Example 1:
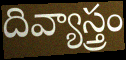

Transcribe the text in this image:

దివ్యాస్త్రం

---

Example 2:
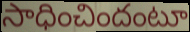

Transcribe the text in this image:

సాధించిందంటూ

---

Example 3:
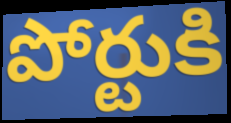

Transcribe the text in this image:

పోర్టుకి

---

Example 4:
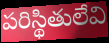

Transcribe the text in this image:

పరిస్థితులేవి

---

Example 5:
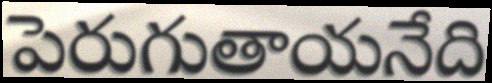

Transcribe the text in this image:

పెరుగుతాయనేది